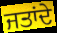
ਜਤਾਂਦੇ